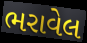
ભરાવેલ